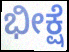
ಭೀಕ್ಷೆ